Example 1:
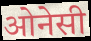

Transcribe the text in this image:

ओनेसी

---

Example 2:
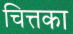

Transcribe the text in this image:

चित्तका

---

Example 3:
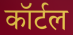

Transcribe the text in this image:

कॉर्टल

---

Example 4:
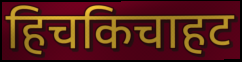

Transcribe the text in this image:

हिचकिचाहट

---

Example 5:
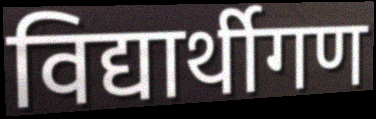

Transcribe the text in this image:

विद्यार्थीगण